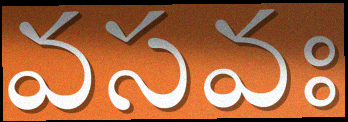
వసవః